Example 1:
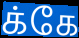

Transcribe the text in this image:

க்கே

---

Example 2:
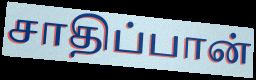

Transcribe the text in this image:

சாதிப்பான்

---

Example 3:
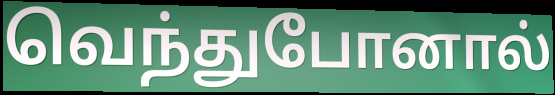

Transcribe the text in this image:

வெந்துபோனால்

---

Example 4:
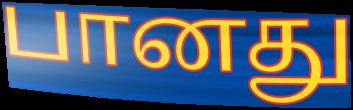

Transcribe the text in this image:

பானது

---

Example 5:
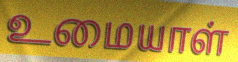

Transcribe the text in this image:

உமையாள்